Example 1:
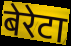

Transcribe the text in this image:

बेरेटा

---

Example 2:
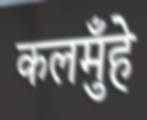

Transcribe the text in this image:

कलमुँहे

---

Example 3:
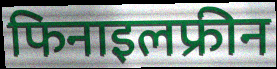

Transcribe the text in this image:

फिनाइलफ्रीन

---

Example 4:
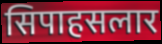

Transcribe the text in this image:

सिपाहसलार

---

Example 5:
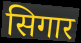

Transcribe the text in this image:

सिगार